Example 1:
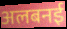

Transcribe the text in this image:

अलबनई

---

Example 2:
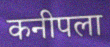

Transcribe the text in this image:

कनीपला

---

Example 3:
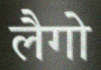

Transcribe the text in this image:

लैगो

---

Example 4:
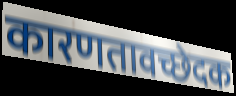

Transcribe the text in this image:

कारणतावच्छेदक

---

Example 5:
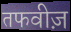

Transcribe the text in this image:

तफवीज़